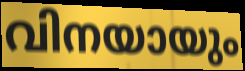
വിനയായും